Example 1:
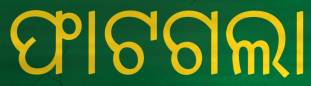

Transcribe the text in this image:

ଫାଟଗଲା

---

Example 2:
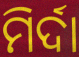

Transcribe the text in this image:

ମିର୍ଦା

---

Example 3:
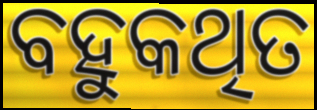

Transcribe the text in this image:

ବହୁକଥିତ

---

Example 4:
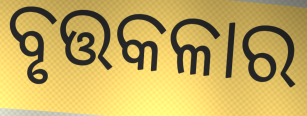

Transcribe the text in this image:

ବୃତ୍ତକଳାର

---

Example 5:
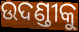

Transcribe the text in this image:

ଉଦଣ୍ଡୀକୁ